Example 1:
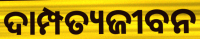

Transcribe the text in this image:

ଦାମ୍ପତ୍ୟଜୀବନ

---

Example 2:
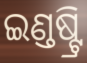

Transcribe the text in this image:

ଇଣ୍ଡଷ୍ଟ୍ରି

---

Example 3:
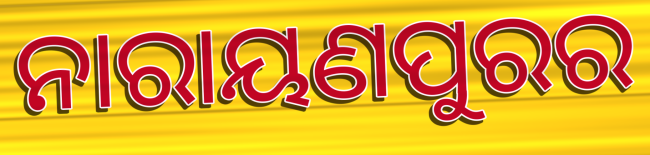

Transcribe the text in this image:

ନାରାୟଣପୁରର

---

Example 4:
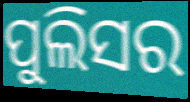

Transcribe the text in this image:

ପୁଲିସର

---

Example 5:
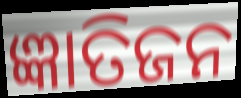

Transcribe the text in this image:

ଜ୍ଞାତିଜନ